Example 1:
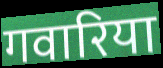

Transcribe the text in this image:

गवारिया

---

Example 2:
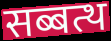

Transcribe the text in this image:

सब्बत्थ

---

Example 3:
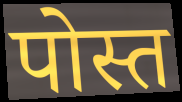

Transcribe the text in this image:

पोस्त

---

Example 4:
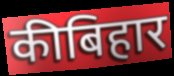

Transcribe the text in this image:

कीबिहार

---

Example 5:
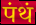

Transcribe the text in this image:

पंथं